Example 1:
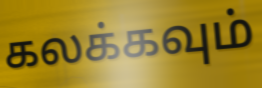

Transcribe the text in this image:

கலக்கவும்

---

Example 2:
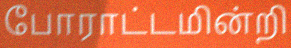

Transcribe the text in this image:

போராட்டமின்றி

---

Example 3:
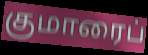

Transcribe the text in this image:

குமாரைப்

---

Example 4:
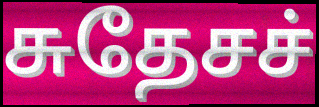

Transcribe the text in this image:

சுதேசச்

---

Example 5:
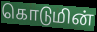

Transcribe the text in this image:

கொடுமின்